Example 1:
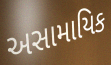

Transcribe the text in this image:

અસામાયિક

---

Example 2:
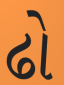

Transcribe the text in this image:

ઢો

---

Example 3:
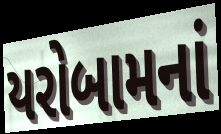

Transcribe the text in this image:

યરોબામનાં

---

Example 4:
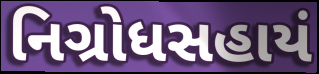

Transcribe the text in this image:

નિગ્રોધસહાયં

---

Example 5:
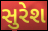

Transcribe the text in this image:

સુરેશ